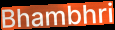
Bhambhri